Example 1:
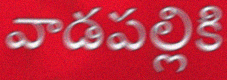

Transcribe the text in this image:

వాడపల్లికి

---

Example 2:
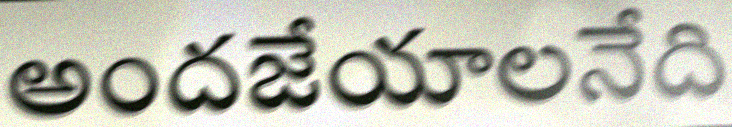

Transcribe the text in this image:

అందజేయాలనేది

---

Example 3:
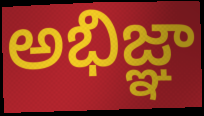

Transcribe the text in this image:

అభిజ్ఞా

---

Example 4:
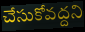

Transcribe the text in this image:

చేసుకోవద్దని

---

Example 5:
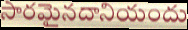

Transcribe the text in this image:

సారమైనదానియందు